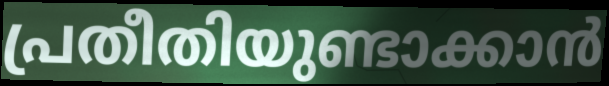
പ്രതീതിയുണ്ടാക്കാൻ